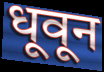
धूवून